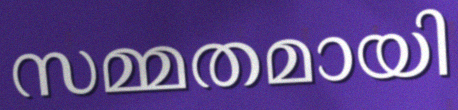
സമ്മതമായി